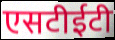
एसटीईटी